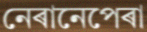
নেৰানেপেৰা